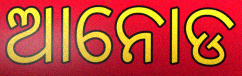
ଆନୋଡ